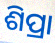
ଶିପ୍ରା